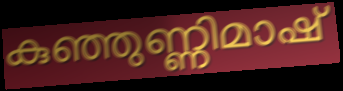
കുഞ്ഞുണ്ണിമാഷ്